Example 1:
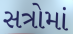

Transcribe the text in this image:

સત્રોમાં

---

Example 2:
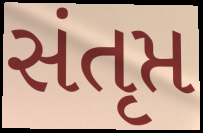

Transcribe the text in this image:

સંતૃપ્ત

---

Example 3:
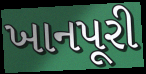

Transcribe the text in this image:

ખાનપૂરી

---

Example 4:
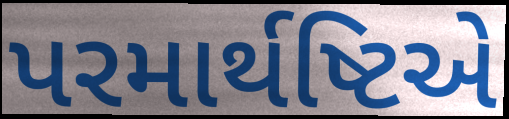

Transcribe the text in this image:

પરમાર્થષ્ટિએ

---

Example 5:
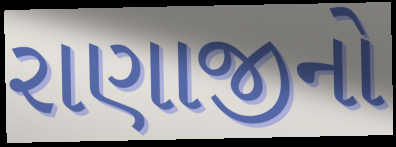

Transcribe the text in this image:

રાણાજીનો